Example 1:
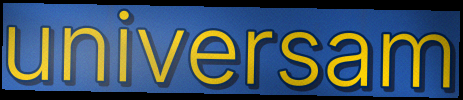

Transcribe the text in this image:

universam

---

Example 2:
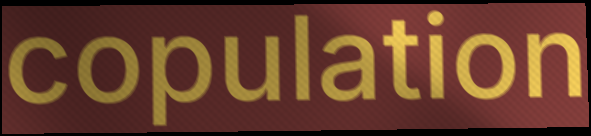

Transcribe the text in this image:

copulation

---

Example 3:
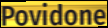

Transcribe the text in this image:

Povidone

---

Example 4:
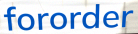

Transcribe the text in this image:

fororder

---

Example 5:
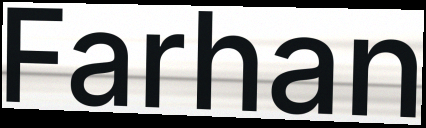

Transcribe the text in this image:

Farhan